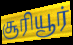
சூரியூர்